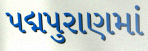
પદ્મપુરાણમાં